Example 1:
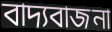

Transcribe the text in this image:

বাদ্যবাজনা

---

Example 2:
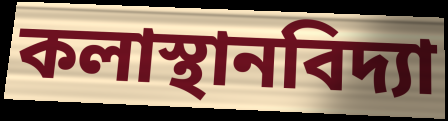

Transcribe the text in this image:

কলাস্থানবিদ্যা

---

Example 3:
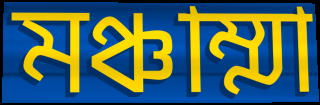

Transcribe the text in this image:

মঞ্চাম্মা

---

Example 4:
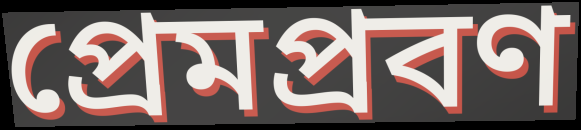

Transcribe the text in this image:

প্রেমপ্রবণ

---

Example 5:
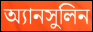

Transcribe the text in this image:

অ্যানসুলিন